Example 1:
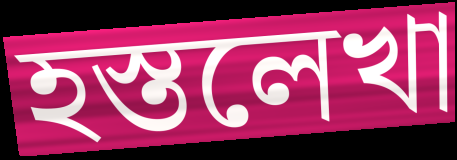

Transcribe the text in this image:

হস্তলেখা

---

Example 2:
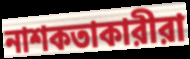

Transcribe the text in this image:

নাশকতাকারীরা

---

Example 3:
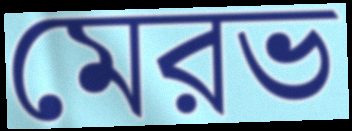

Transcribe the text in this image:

মেরভ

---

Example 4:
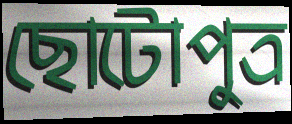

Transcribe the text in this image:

ছোটোপুত্র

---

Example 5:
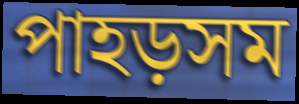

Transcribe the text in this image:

পাহড়সম